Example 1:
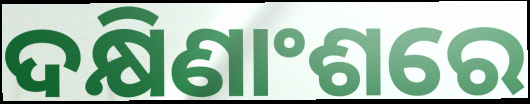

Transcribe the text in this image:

ଦକ୍ଷିଣାଂଶରେ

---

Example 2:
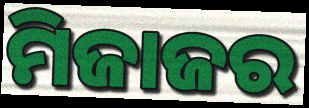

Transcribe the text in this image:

ମିଜାଜର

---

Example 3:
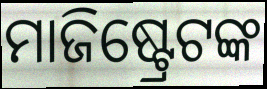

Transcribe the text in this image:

ମାଜିଷ୍ଟ୍ରେଟଙ୍କ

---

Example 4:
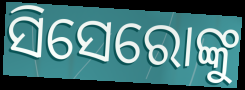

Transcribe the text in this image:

ସିସେରୋଙ୍କୁ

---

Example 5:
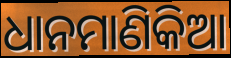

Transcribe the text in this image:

ଧାନମାଣିକିଆ